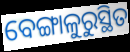
ବେଙ୍ଗାଳୁରୁସ୍ଥିତ